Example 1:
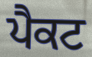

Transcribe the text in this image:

ਪੈਕਟ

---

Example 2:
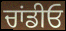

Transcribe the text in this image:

ਚਾਂਡੀਓ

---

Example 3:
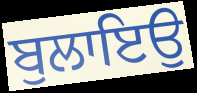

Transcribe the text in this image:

ਬੁਲਾਇਉ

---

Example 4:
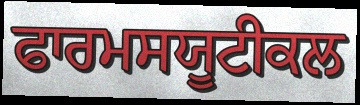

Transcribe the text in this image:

ਫਾਰਮਸਯੂਟੀਕਲ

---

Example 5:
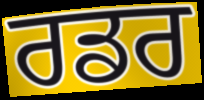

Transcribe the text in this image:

ਰਡਰ